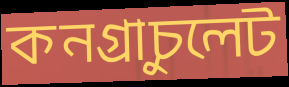
কনগ্রাচুলেট